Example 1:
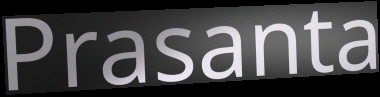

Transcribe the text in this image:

Prasanta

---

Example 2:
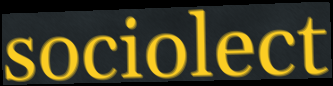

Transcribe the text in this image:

sociolect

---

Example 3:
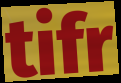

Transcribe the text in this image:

tifr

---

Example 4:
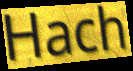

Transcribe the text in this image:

Hach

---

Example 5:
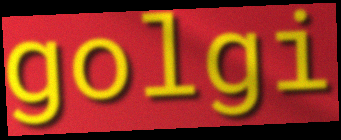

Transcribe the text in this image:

golgi